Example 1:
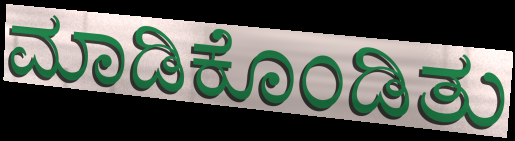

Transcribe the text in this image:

ಮಾಡಿಕೊಂಡಿತು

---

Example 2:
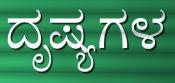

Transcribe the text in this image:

ದೃಷ್ಯಗಳ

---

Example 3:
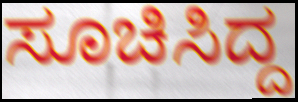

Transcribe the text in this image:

ಸೂಚಿಸಿದ್ದ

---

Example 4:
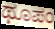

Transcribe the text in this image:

ಥೂಪಂ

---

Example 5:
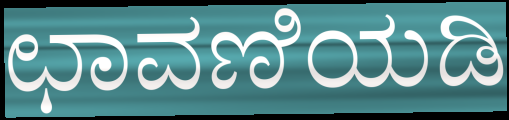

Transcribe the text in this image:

ಛಾವಣಿಯಡಿ